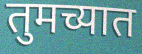
तुमच्यात